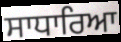
ਸਾਧਾਰਿਆ